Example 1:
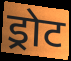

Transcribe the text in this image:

ड्रोट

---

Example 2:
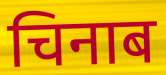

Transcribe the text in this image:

चिनाब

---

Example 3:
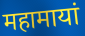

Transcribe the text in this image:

महामायां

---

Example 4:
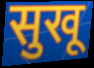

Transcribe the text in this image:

सुखू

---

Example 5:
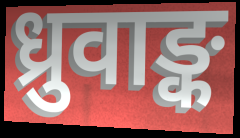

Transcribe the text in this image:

ध्रुवाङ्क